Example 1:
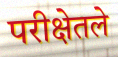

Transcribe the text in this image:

परीक्षेतले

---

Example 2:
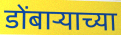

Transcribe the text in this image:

डोंबाऱ्याच्या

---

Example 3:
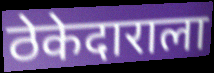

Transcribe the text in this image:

ठेकेदाराला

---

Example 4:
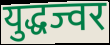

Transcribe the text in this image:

युद्धज्वर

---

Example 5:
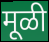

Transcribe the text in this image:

मूळी